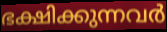
ഭക്ഷിക്കുന്നവർ